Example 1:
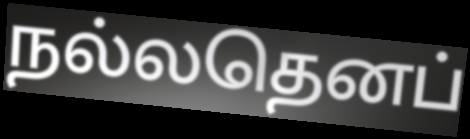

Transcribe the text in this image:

நல்லதெனப்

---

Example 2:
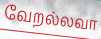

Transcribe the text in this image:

வேறல்லவா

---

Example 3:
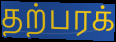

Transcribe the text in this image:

தற்பரக்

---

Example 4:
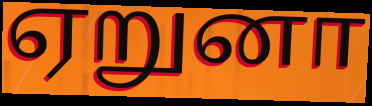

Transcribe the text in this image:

ஏறுனா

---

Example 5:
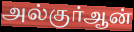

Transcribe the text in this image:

அல்குர்ஆன்